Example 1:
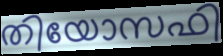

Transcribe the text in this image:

തിയോസഫി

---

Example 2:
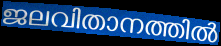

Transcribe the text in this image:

ജലവിതാനത്തിൽ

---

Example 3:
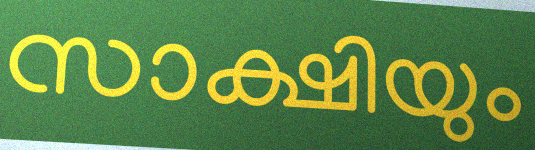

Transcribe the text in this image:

സാക്ഷിയും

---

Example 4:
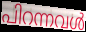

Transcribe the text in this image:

പിറന്നവൾ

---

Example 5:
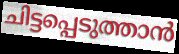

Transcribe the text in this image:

ചിട്ടപ്പെടുത്താൻ